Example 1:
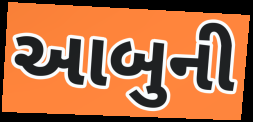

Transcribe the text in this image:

આબુની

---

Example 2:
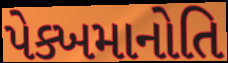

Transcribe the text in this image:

પેક્ખમાનોતિ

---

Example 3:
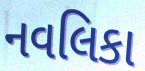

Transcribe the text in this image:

નવલિકા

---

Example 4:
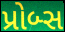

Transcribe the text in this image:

પ્રોબ્સ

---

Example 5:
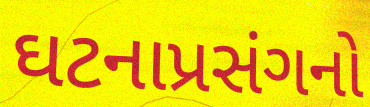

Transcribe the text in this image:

ઘટનાપ્રસંગનો